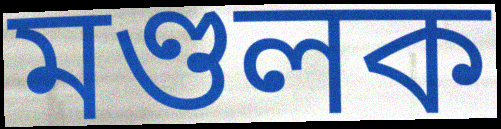
মণ্ডলক